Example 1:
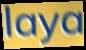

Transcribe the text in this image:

laya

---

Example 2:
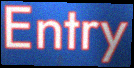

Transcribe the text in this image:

Entry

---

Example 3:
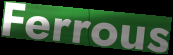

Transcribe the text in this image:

Ferrous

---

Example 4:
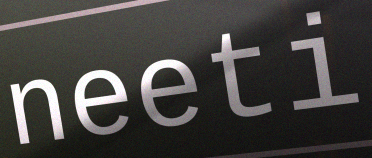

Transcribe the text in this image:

neeti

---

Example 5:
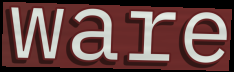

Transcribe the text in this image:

ware